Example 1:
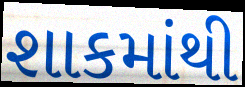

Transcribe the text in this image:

શાકમાંથી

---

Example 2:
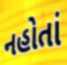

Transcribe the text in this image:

નહોતાં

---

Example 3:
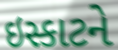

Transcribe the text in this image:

ઇસ્કાટને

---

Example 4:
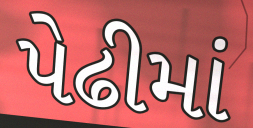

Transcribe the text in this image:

પેઢીમાં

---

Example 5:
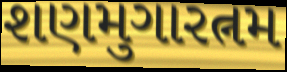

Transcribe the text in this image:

શણમુગારત્નમ